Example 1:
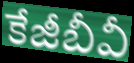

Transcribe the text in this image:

కేజీబీవీ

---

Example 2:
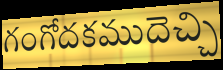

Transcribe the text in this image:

గంగోదకముదెచ్చి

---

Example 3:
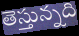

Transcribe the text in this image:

తెస్తున్నది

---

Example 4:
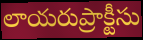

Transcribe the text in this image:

లాయరుప్రాక్టీసు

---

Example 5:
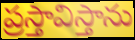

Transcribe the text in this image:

ప్రస్తావిస్తాను